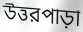
উত্তরপাড়া